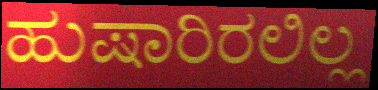
ಹುಷಾರಿರಲಿಲ್ಲ